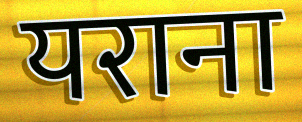
यराना